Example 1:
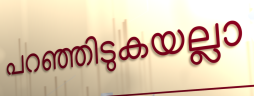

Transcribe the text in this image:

പറഞ്ഞിടുകയല്ലാ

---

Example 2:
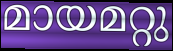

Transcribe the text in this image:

മായമറ്റു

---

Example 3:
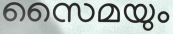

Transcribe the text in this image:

സൈമയും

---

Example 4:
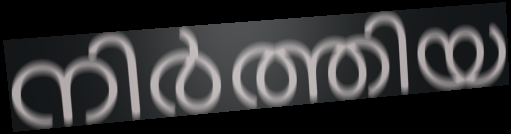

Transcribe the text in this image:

നിർത്തിയ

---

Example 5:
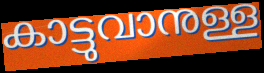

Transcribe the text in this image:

കാട്ടുവാനുള്ള